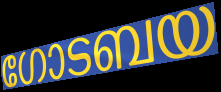
ഗോടബയ